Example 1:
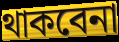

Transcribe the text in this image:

থাকবেনা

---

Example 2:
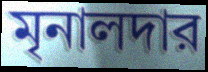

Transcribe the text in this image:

মৃনালদার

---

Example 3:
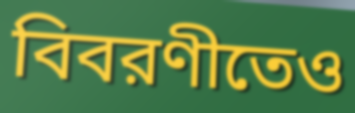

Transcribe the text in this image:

বিবরণীতেও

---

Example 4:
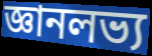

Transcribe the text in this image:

জ্ঞানলভ্য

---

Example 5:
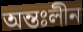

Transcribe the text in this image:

অন্তঃলীন